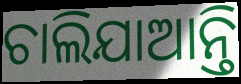
ଚାଲିଯାଆନ୍ତି